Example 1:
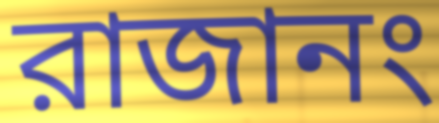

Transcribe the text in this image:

রাজানং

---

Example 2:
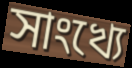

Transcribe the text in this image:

সাংখ্যে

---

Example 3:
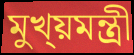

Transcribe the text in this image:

মুখ্য়মন্ত্রী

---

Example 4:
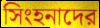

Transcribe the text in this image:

সিংহনাদের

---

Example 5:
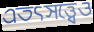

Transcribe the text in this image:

এতৎসত্ত্বেও